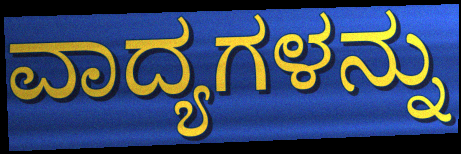
ವಾದ್ಯಗಳನ್ನು